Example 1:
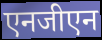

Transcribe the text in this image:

एनजीएन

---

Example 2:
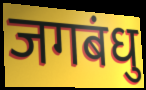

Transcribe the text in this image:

जगबंधु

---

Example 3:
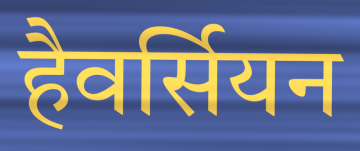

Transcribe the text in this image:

हैवर्सियन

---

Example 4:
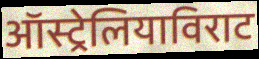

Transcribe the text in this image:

ऑस्ट्रेलियाविराट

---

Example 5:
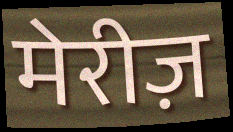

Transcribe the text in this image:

मेरीज़